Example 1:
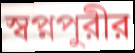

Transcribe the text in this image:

স্বপ্নপুরীর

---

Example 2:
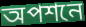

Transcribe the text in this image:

অপশনে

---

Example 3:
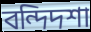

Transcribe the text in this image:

বন্দিদশা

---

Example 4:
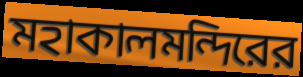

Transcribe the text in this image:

মহাকালমন্দিরের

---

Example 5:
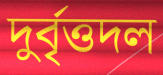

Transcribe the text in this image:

দুর্বৃত্তদল